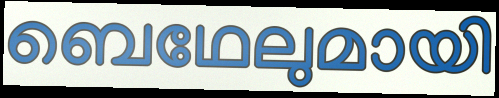
ബെഥേലുമായി